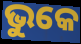
ଭୁକେ